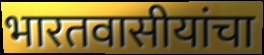
भारतवासीयांचा